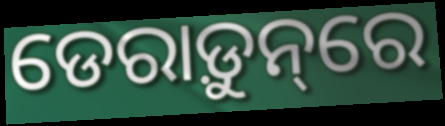
ଡେରାଡ଼ୁନ୍‌ରେ